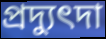
প্রদ্যুৎদা